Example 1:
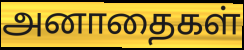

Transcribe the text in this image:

அனாதைகள்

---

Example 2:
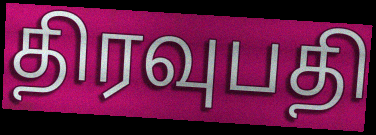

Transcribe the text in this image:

திரவுபதி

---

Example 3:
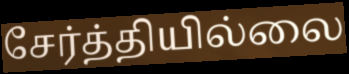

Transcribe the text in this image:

சேர்த்தியில்லை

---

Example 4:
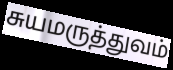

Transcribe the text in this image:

சுயமருத்துவம்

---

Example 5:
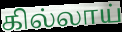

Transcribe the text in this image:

கில்லாய்